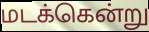
மடக்கென்று